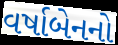
વર્ષાબેનનો